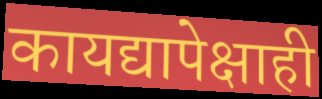
कायद्यापेक्षाही